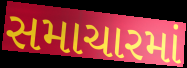
સમાચારમાં